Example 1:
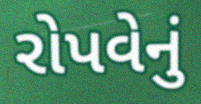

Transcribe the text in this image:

રોપવેનું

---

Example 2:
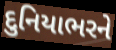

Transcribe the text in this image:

દુનિયાભરને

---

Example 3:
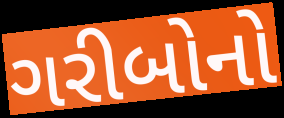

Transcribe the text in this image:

ગરીબોનો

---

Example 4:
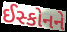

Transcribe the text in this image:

ઈસ્કોનને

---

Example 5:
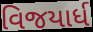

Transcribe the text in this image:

વિજયાર્ધ